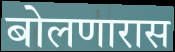
बोलणारास